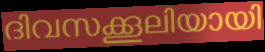
ദിവസക്കൂലിയായി